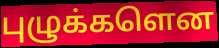
புழுக்களென